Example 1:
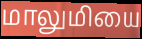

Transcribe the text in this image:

மாலுமியை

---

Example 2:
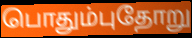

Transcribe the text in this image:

பொதும்புதோறு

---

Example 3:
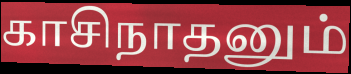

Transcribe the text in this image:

காசிநாதனும்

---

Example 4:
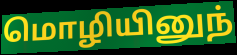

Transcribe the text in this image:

மொழியினுந்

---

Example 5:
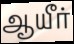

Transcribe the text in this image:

ஆயீர்